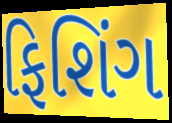
ફિશિંગ